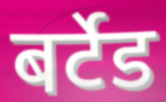
बर्टेड